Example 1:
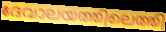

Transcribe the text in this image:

ദേവാലയത്തിലെത്തി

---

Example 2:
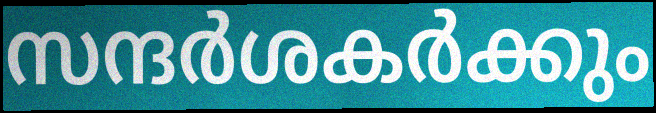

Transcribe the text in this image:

സന്ദർശകർക്കും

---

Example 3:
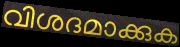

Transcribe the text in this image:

വിശദമാക്കുക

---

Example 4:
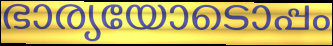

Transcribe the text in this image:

ഭാര്യയോടൊപ്പം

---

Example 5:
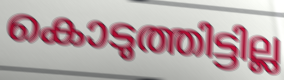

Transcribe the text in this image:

കൊടുത്തിട്ടില്ല